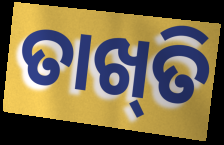
ତାଖ୍‍ତି